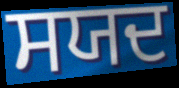
ਸਯਦ